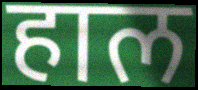
हाल